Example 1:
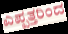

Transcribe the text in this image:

ಎಪ್ಪತ್ತರಿಂದ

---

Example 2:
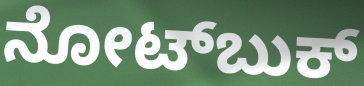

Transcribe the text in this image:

ನೋಟ್‌ಬುಕ್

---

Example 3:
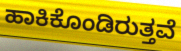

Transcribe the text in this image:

ಹಾಕಿಕೊಂಡಿರುತ್ತವೆ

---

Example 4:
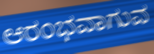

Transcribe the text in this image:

ಆರಂಭವಾಗುವ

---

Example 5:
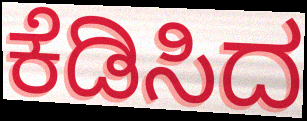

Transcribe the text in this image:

ಕೆಡಿಸಿದ